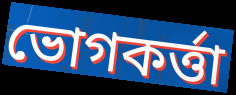
ভোগকর্ত্তা